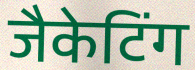
जैकेटिंग